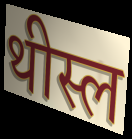
थीस्ल